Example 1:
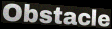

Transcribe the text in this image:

Obstacle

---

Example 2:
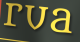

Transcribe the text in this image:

rua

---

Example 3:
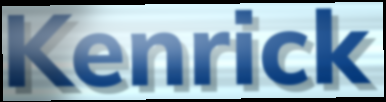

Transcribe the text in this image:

Kenrick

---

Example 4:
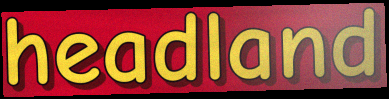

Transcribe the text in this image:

headland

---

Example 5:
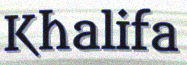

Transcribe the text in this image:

Khalifa